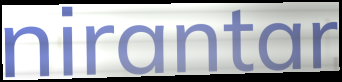
nirantar